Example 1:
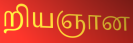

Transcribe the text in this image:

றியஞான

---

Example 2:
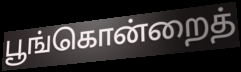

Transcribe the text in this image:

பூங்கொன்றைத்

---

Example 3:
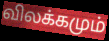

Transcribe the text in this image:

விலக்கமும்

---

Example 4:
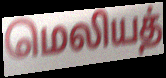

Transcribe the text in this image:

மெலியத்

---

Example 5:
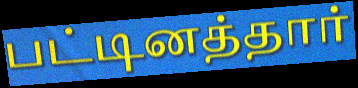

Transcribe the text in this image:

பட்டினத்தார்